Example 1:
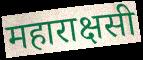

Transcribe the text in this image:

महाराक्षसी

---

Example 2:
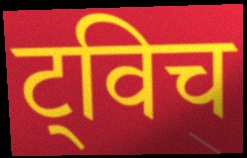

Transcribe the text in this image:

ट्विच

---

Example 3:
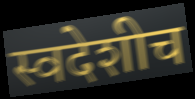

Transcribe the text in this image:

स्वदेशीच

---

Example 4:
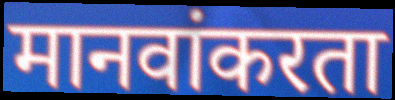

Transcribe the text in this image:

मानवांकरता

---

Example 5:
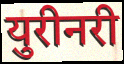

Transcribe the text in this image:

युरीनरी